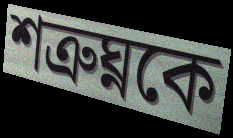
শত্রুঘ্নকে